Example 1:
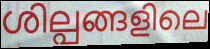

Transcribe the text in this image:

ശില്പങ്ങളിലെ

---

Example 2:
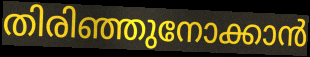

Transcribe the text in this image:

തിരിഞ്ഞുനോക്കാൻ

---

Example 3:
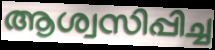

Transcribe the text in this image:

ആശ്വസിപ്പിച്ച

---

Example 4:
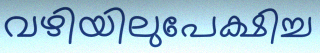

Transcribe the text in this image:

വഴിയിലുപേക്ഷിച്ച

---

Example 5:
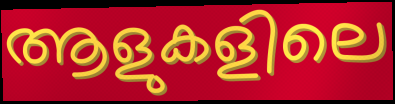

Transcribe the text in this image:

ആളുകളിലെ